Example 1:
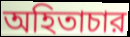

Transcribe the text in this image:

অহিতাচার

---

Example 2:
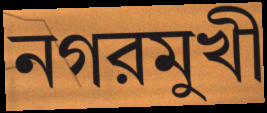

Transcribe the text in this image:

নগরমুখী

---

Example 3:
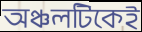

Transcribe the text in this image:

অঞ্চলটিকেই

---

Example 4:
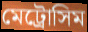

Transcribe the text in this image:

মেট্রোসিম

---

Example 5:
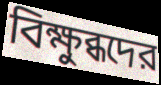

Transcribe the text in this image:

বিক্ষুব্ধদের